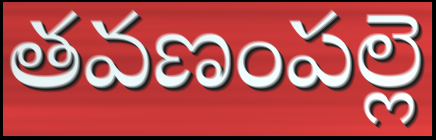
తవణంపల్లె